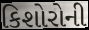
કિશોરોની